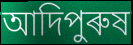
আদিপুৰুষ